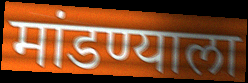
मांडण्याला